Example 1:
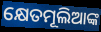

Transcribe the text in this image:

କ୍ଷେତମୂଲିଆଙ୍କ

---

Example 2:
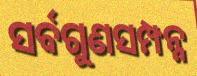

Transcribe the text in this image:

ସର୍ବଗୁଣସମ୍ପନ୍ନ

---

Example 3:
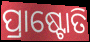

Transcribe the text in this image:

ପ୍ରାଷ୍ଟୋତି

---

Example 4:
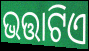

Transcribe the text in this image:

ଭତ୍ତାଟିଏ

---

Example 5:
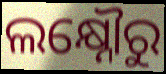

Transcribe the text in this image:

ଲକ୍ଷ୍ନୌରୁ